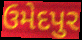
ઉમેદપુર